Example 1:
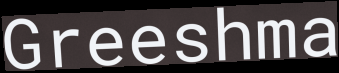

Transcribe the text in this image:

Greeshma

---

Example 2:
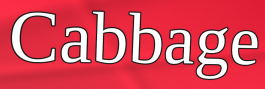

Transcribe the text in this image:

Cabbage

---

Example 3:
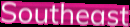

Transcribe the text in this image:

Southeast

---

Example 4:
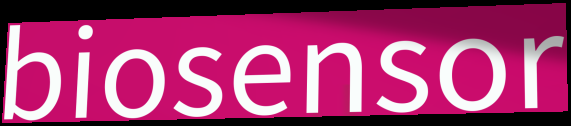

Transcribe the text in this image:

biosensor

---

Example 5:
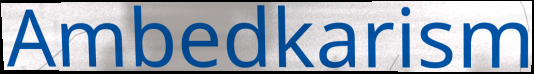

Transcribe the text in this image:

Ambedkarism